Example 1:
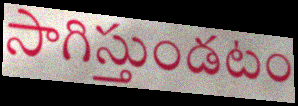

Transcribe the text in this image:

సాగిస్తుండటం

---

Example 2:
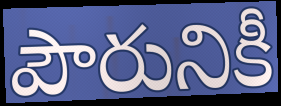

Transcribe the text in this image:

పౌరునికీ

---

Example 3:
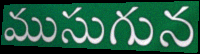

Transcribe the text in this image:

ముసుగున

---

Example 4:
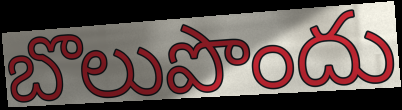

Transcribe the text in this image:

బొలుపొందు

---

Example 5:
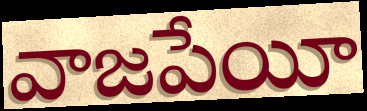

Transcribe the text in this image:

వాజపేయీ